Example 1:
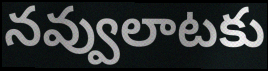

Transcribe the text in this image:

నవ్వులాటకు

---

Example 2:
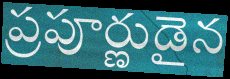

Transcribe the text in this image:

ప్రపూర్ణుడైన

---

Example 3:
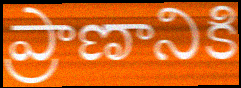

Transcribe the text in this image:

ప్రాణానికి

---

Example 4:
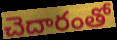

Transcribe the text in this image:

చెదారంతో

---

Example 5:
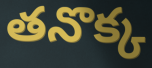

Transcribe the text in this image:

తనొక్క